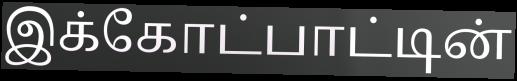
இக்கோட்பாட்டின்